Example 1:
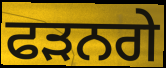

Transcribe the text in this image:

ਫੜਨਗੇ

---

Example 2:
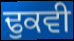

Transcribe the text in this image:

ਢੁਕਵੀ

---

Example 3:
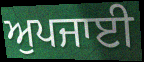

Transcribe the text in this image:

ਅੁਪਜਾਈ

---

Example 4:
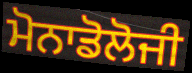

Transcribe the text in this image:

ਮੋਨਾਡੋਲੋਜੀ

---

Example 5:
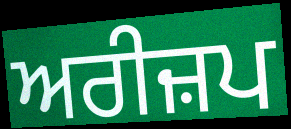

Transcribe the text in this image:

ਅਰੀਜ਼ਪ